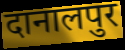
दानालपुर